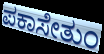
ಪಕಾಸೇತುಂ